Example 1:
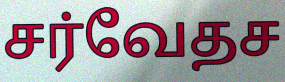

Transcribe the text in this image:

சர்வேதச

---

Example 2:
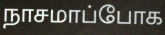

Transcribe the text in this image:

நாசமாப்போக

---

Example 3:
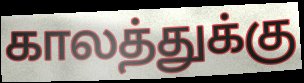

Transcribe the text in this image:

காலத்துக்கு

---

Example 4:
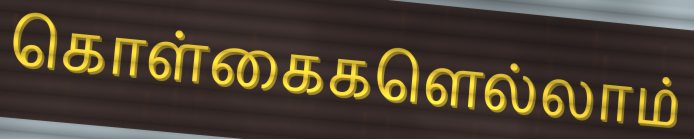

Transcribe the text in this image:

கொள்கைகளெல்லாம்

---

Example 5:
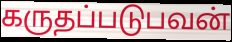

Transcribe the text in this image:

கருதப்படுபவன்